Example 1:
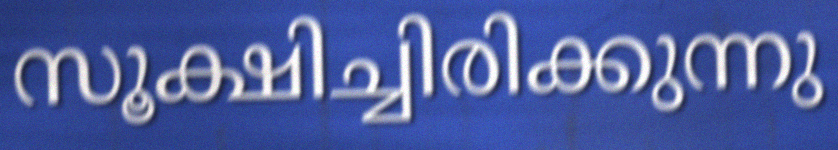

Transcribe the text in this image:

സൂക്ഷിച്ചിരിക്കുന്നു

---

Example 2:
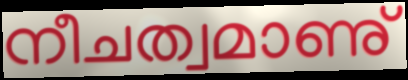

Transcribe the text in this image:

നീചത്വമാണു്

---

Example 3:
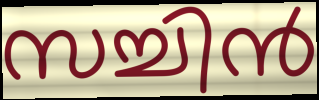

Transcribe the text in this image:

സച്ചിൻ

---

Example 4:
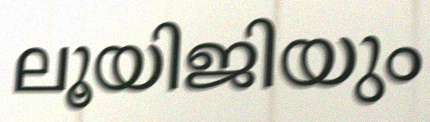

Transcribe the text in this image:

ലൂയിജിയും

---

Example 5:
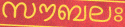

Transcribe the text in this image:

സൗബലഃ